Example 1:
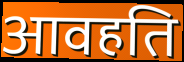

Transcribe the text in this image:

आवहति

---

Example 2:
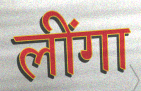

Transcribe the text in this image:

लींगा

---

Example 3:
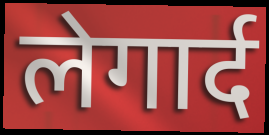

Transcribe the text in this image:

लेगार्द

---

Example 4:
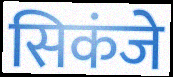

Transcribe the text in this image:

सिकंजे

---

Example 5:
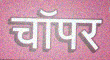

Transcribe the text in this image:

चॉपर